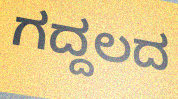
ಗದ್ದಲದ